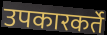
उपकारकर्ते